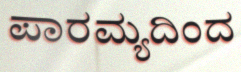
ಪಾರಮ್ಯದಿಂದ